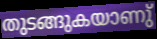
തുടങ്ങുകയാണു്